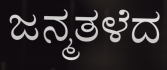
ಜನ್ಮತಳೆದ